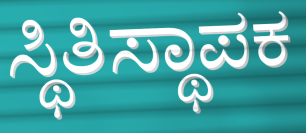
ಸ್ಥಿತಿಸ್ಥಾಪಕ